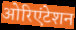
ओरिएंटेशन